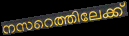
നസറെത്തിലേക്ക്